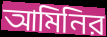
আমিনির